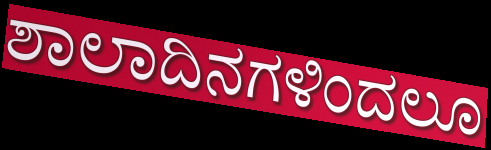
ಶಾಲಾದಿನಗಳಿಂದಲೂ